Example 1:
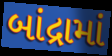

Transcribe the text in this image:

બાંદ્રામાં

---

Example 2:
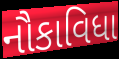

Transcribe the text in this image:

નૌકાવિધા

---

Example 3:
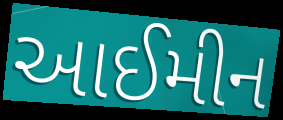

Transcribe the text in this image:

આઈમીન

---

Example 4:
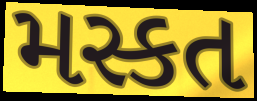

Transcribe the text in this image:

મસ્કત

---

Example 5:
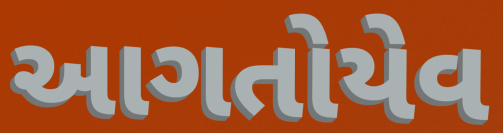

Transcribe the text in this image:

આગતોયેવ